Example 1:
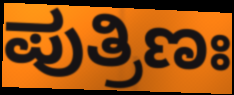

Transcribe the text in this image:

ಪುತ್ರಿಣಃ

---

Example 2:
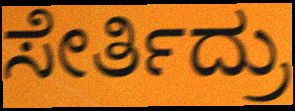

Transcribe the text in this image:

ಸೇರ್ತಿದ್ರು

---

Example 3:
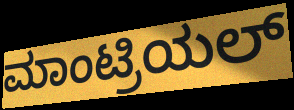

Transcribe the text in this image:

ಮಾಂಟ್ರಿಯಲ್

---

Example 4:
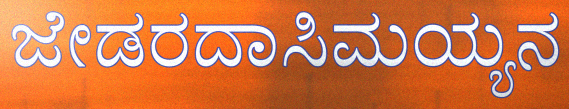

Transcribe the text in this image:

ಜೇಡರದಾಸಿಮಯ್ಯನ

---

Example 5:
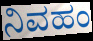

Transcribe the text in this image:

ನಿವಹಂ